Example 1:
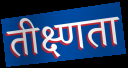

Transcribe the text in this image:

तीक्ष्णता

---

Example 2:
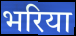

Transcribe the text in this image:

भरिया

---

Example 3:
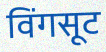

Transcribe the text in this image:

विंगसूट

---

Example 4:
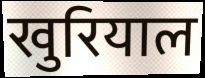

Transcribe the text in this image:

खुरियाल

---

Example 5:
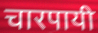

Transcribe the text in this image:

चारपायी